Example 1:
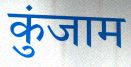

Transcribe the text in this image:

कुंजाम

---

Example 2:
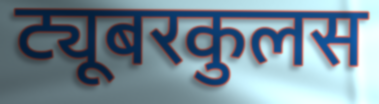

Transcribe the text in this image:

ट्यूबरकुलस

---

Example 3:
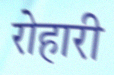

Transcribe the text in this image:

रोहारी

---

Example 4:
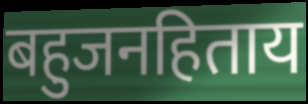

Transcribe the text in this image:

बहुजनहिताय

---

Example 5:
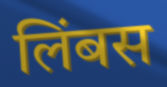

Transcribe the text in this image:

लिंबस